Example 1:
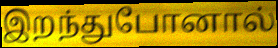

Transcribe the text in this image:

இறந்துபோனால்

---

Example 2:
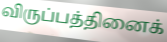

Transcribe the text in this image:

விருப்பத்தினைக்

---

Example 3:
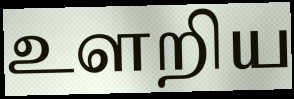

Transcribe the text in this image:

உளறிய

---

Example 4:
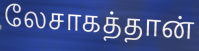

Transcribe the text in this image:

லேசாகத்தான்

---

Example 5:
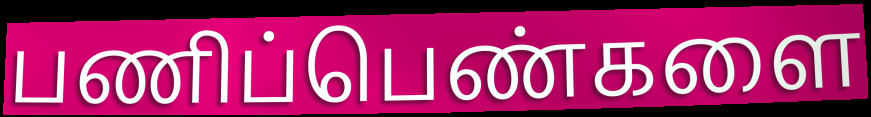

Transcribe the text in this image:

பணிப்பெண்களை